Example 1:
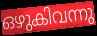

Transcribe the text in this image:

ഒഴുകിവന്നു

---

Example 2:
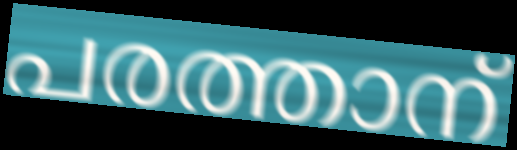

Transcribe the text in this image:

പരത്താന്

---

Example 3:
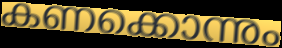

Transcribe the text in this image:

കണക്കൊന്നും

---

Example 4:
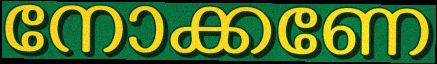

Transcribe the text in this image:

നോക്കണേ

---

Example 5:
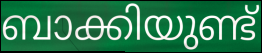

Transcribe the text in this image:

ബാക്കിയുണ്ട്